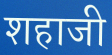
शहाजी